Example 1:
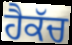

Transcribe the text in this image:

ਹੈਕੱਚ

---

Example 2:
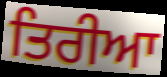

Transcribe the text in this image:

ਤਿਰੀਆ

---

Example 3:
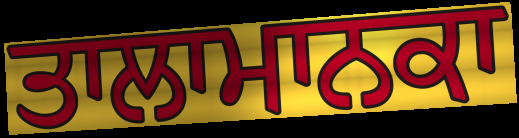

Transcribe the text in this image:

ਤਾਲਾਮਾਨਕਾ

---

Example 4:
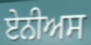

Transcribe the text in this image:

ਏਨੀਅਸ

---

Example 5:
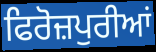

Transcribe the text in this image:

ਫਿਰੋਜ਼ਪੁਰੀਆਂ